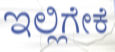
ಇಲ್ಲಿಗೇಕೆ